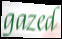
gazed